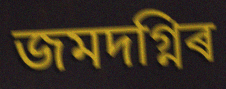
জমদগ্নিৰ